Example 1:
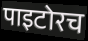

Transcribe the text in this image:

पाइटोरच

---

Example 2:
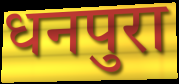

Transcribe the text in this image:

धनपुरा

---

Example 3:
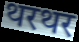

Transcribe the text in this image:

थरथर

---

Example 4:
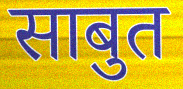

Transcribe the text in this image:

साबुत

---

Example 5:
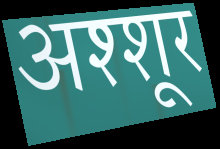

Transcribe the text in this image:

अश्शूर